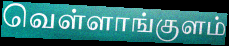
வெள்ளாங்குளம்